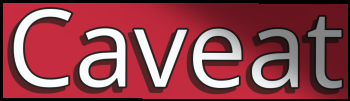
Caveat